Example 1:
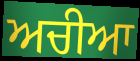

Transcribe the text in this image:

ਅਚੀਆ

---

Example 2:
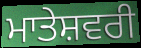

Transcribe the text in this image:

ਮਾਤੇਸ਼ਵਰੀ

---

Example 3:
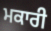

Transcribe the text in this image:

ਮਕਾਰੀ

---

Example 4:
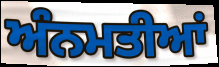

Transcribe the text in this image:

ਅੰਨਮਤੀਆਂ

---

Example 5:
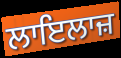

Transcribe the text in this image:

ਲਾਇਲਾਜ਼